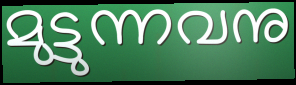
മുട്ടുന്നവനു